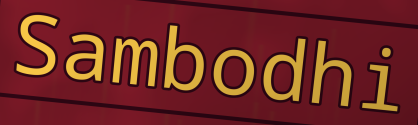
Sambodhi